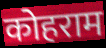
कोहराम